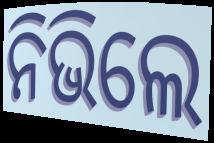
ନିଭିଲେ